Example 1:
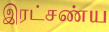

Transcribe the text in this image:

இரட்சண்ய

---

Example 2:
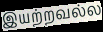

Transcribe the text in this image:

இயற்றவல்ல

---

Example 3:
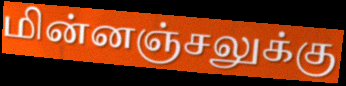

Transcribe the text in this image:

மின்னஞ்சலுக்கு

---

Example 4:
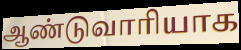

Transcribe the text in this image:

ஆண்டுவாரியாக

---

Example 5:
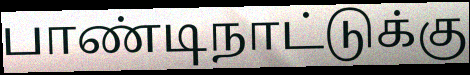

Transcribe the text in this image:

பாண்டிநாட்டுக்கு